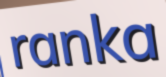
ranka